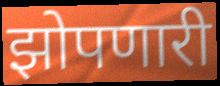
झोपणारी